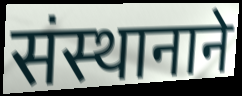
संस्थानाने